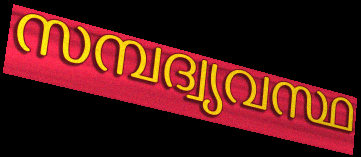
സമ്പദ്വ്യവസ്ഥ